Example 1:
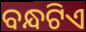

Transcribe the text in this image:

ବନ୍ଧଟିଏ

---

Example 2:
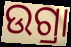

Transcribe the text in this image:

ଉଗ୍ରା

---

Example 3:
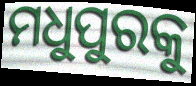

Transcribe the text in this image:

ମଧୁପୁରକୁ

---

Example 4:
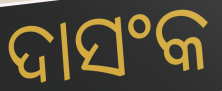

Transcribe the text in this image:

ଦାସଂକ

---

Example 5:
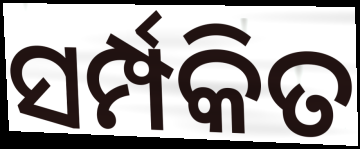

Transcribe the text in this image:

ସର୍ମ୍ପକିତ